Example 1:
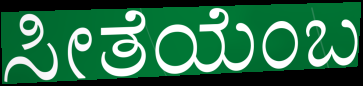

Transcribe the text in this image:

ಸೀತೆಯೆಂಬ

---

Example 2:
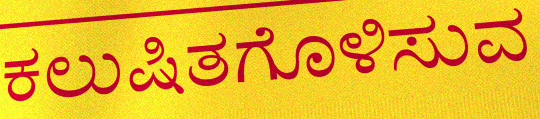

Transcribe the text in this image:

ಕಲುಷಿತಗೊಳಿಸುವ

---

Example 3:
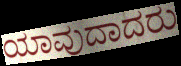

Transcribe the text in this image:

ಯಾವುದಾದರು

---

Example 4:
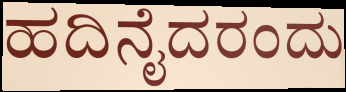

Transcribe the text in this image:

ಹದಿನೈದರಂದು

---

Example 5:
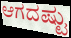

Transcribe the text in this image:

ಆಗದಷ್ಟು